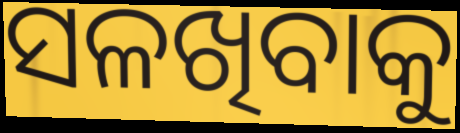
ସଳଖିବାକୁ